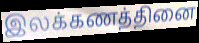
இலக்கணத்தினை